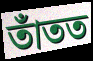
তাঁতত